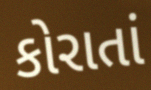
કોરાતાં